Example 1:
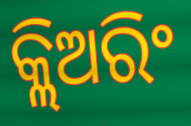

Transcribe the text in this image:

କ୍ଲିଅରିଂ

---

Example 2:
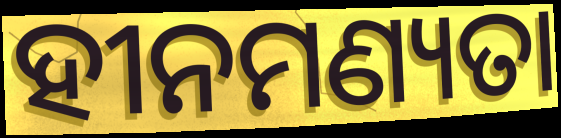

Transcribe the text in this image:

ହୀନମଣ୍ୟତା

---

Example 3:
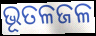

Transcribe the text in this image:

ଭୂତଳଜଳ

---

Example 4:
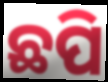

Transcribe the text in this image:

ଛପି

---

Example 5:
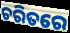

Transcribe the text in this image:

ଚରିତରେ